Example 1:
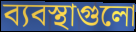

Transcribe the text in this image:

ব্যবস্থাগুলো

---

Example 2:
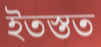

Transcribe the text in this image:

ইতস্তত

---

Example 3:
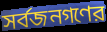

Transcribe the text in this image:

সর্বজনগণের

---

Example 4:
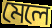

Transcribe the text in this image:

মেলে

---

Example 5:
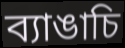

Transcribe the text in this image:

ব্যাঙাচি